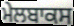
ਮੇਲਬਾਕਸ